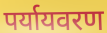
पर्यायवरण